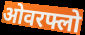
ओवरफ्लो